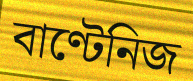
বাণ্টেনিজ